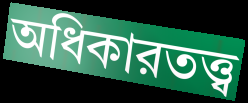
অধিকারতত্ত্ব